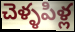
చెళ్ళపిళ్ల